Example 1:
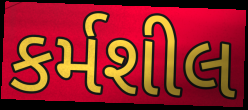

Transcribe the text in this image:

કર્મશીલ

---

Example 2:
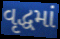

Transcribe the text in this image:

વૃદ્ધમાં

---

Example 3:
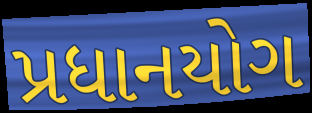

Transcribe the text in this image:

પ્રધાનયોગ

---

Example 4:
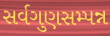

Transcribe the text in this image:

સર્વગુણસમ્પન્ન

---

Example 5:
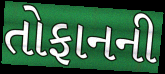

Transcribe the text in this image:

તોફાનની